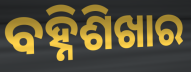
ବହ୍ନିଶିଖାର